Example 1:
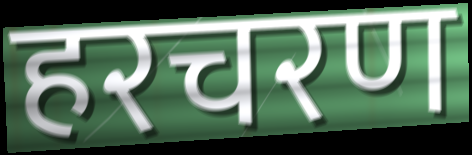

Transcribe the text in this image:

हरचरण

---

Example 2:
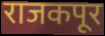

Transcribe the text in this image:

राजकपूर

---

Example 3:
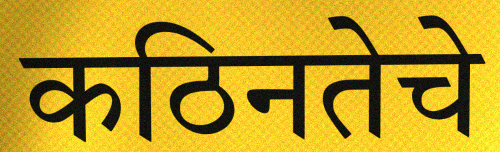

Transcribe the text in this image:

कठिनतेचे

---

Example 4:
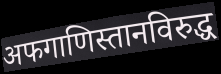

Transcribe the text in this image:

अफगाणिस्तानविरुद्ध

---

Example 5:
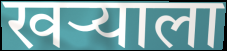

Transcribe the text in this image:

खर्‍याला